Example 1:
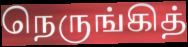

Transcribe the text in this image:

நெருங்கித்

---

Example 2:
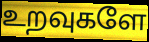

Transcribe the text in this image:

உறவுகளே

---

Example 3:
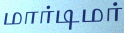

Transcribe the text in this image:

மார்டிமர்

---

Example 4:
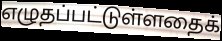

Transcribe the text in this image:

எழுதப்பட்டுள்ளதைக்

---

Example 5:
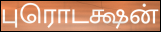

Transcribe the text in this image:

புரொடக்ஷன்